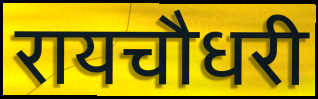
रायचौधरी